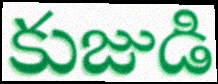
కుజుడి